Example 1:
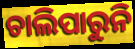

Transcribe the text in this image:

ଚାଲିପାରୁନି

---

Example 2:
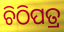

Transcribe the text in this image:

ଚିଠିପତ୍ର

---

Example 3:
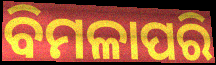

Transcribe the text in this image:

ବିମଳାପରି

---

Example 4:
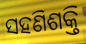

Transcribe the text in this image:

ସହଣିଶକ୍ତି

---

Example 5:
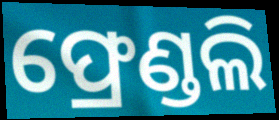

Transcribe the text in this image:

ଫ୍ରେଣ୍ଡଲି